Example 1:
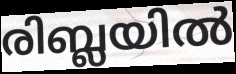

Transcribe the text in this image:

രിബ്ലയിൽ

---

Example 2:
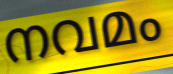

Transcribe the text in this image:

നവമം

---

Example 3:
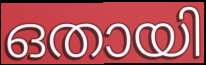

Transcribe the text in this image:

ഒതായി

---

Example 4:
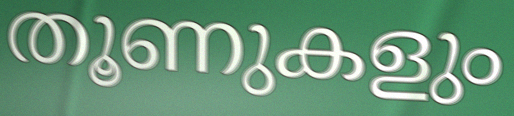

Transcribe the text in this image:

തൂണുകളും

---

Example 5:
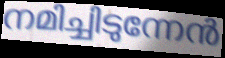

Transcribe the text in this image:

നമിച്ചിടുന്നേൻ